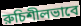
রুচিশীলভাবে